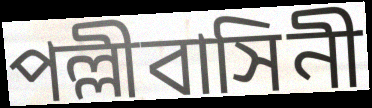
পল্লীবাসিনী